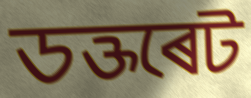
ডক্তৰেট